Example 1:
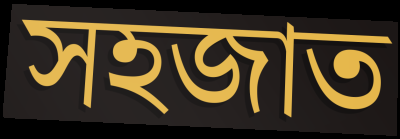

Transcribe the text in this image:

সহজাত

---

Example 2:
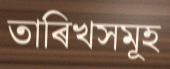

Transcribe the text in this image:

তাৰিখসমূহ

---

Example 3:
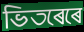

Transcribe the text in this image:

ভিতৰেৰে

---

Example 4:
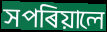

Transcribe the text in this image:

সপৰিয়ালে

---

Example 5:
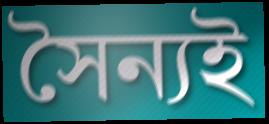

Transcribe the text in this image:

সৈন্যই